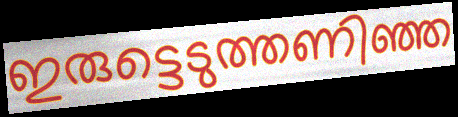
ഇരുട്ടെടുത്തണിഞ്ഞ